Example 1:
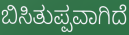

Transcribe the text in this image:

ಬಿಸಿತುಪ್ಪವಾಗಿದೆ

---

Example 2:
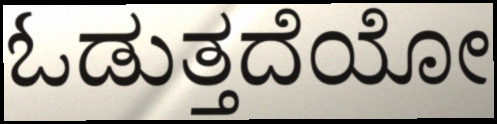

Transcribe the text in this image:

ಓಡುತ್ತದೆಯೋ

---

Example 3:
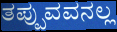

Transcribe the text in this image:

ತಪ್ಪುವವನಲ್ಲ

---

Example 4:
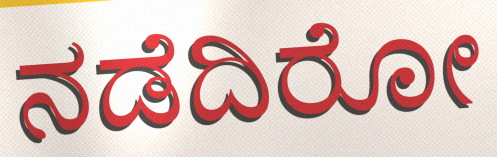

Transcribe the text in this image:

ನಡೆದಿರೋ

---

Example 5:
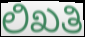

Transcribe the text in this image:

ಲಿಖತಿ